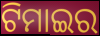
ଟିମାଇର